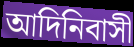
আদিনিবাসী